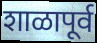
शाळापूर्व